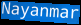
Nayanmar